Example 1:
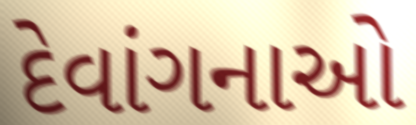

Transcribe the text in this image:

દેવાંગનાઓ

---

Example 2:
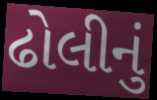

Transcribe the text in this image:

ઢોલીનું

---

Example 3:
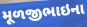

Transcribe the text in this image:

મૂળજીભાઇના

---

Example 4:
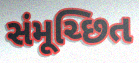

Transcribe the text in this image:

સંમૂચ્છિત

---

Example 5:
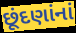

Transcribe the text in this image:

છૂંદણાંનાં